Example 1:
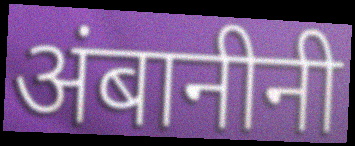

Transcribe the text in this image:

अंबानीनी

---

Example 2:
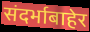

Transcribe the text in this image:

संदर्भाबाहेर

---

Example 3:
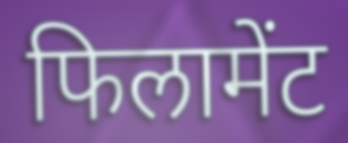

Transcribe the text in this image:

फिलामेंट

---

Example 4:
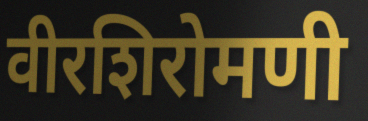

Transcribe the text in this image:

वीरशिरोमणी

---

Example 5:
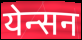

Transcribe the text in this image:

येन्सन